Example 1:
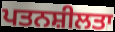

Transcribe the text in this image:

ਪਤਨਸ਼ੀਲਤਾ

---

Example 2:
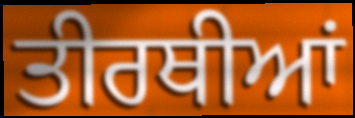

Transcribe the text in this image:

ਤੀਰਥੀਆਂ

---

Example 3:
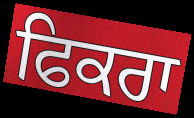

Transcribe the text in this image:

ਫਿਕਰਾ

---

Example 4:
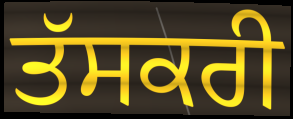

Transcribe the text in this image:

ਤੱਸਕਰੀ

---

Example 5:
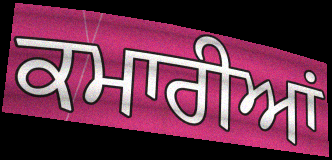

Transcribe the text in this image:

ਕਮਾਰੀਆਂ